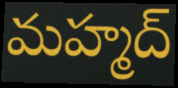
మహ్మద్